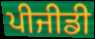
ਪੀਜੀਡੀ